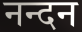
नन्‍दन